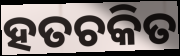
ହତଚକିତ